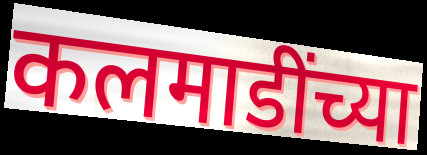
कलमाडींच्या